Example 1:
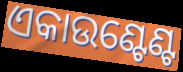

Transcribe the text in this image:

ଏକାଉଣ୍ଟେଣ୍ଟ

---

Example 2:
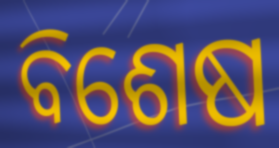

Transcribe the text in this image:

ବିଶେଷ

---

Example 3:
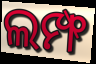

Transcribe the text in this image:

ଲମ୍ଫ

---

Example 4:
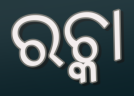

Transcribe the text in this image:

ରଚ୍କା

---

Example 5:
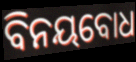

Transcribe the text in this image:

ବିନୟବୋଧ